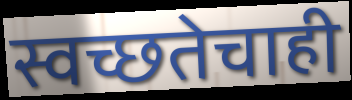
स्वच्छतेचाही